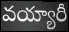
వయ్యారీ